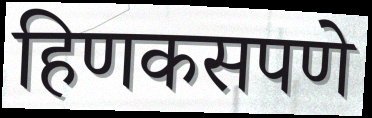
हिणकसपणे